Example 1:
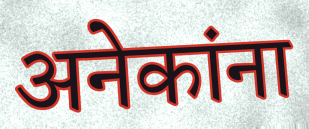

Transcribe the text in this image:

अनेकांना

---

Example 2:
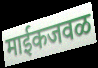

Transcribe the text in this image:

माईकजवळ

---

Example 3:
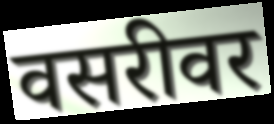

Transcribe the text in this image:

वसरीवर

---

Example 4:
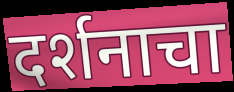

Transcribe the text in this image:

दर्शनाचा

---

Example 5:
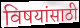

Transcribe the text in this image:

विषयांसाठी